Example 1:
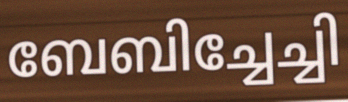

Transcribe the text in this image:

ബേബിച്ചേച്ചി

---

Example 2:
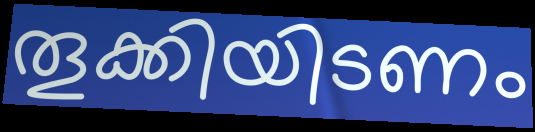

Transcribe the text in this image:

തൂക്കിയിടണം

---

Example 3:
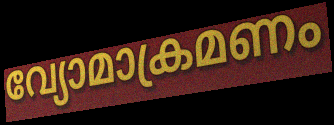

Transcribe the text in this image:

വ്യോമാക്രമണം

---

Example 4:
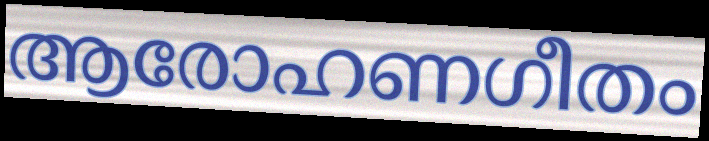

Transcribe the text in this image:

ആരോഹണഗീതം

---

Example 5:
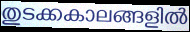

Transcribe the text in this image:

തുടക്കകാലങ്ങളിൽ